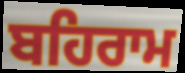
ਬਹਿਰਾਮ